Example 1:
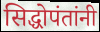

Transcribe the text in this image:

सिद्धोपंतांनी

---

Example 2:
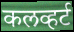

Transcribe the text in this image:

कलव्हर्ट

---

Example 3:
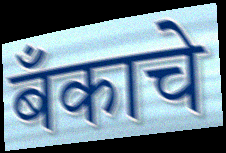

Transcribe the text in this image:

बँकाचे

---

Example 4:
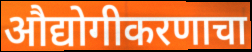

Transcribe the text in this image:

औद्योगीकरणाचा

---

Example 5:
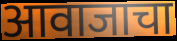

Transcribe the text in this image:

आवाजाचा